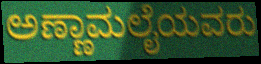
ಅಣ್ಣಾಮಲೈಯವರು